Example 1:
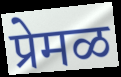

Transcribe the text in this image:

प्रेमळ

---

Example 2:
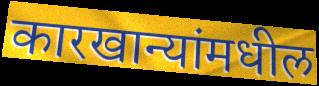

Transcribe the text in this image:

कारखान्यांमधील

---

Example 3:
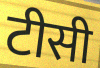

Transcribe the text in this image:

टीसी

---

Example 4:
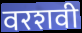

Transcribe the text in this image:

वरशवी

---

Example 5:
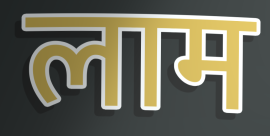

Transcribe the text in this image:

लाम